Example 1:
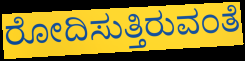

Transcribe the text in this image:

ರೋದಿಸುತ್ತಿರುವಂತೆ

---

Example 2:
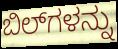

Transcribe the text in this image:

ಬಿಲ್‌ಗಳನ್ನು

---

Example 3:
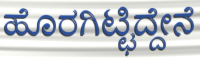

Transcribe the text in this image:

ಹೊರಗಿಟ್ಟಿದ್ದೇನೆ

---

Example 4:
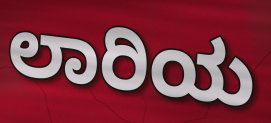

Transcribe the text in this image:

ಲಾರಿಯ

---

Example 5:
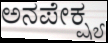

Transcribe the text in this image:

ಅನಪೇಕ್ಷ್ಯ